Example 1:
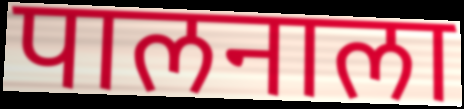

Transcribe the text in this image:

पालनाला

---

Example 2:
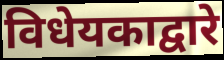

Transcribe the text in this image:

विधेयकाद्वारे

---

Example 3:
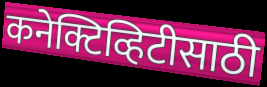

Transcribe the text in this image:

कनेक्टिव्हिटीसाठी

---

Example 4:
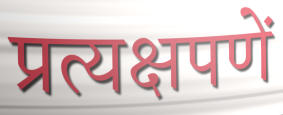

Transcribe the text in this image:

प्रत्यक्षपणें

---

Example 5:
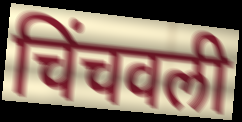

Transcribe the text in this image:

चिंचवली